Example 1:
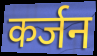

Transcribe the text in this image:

कर्जन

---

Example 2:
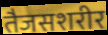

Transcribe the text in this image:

तैजसशरीर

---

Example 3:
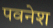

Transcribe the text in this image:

पवनेश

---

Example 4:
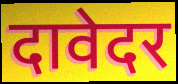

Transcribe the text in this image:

दावेदर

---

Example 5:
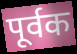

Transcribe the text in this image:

पूर्वक